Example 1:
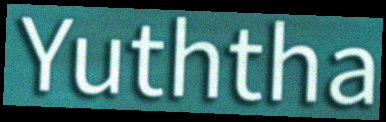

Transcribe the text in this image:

Yuththa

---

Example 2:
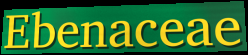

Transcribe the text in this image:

Ebenaceae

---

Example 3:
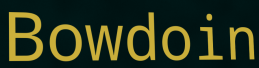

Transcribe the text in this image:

Bowdoin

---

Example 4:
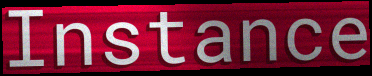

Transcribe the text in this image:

Instance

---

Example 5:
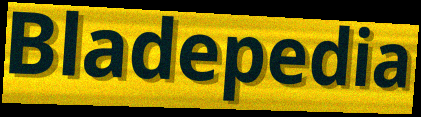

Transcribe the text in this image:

Bladepedia